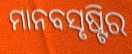
ମାନବସୃଷ୍ଟିର